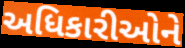
અધિકારીઓને